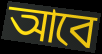
আবে